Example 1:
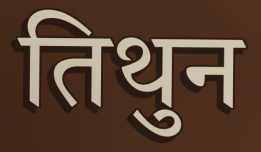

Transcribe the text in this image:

तिथुन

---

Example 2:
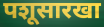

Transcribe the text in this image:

पशूसारखा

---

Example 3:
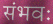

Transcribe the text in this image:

संभवः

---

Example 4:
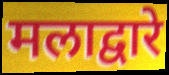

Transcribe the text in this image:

मलाद्वारे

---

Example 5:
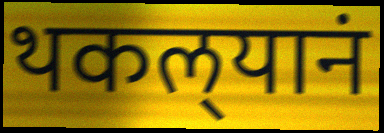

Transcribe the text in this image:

थकल्यानं